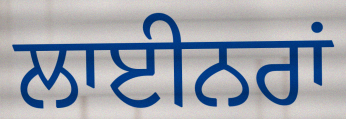
ਲਾਈਨਰਾਂ